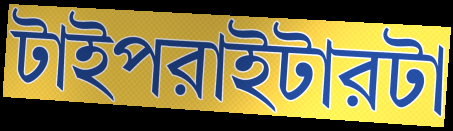
টাইপরাইটারটা